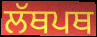
ਲੱਥਪਥ